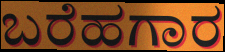
ಬರೆಹಗಾರ